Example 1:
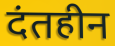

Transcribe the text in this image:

दंतहीन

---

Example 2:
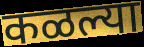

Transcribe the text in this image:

कळल्या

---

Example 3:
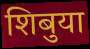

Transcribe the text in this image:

शिबुया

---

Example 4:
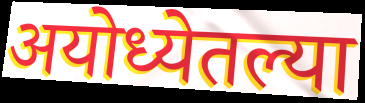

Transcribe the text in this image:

अयोध्येतल्या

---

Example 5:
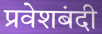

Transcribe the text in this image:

प्रवेशबंदी